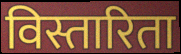
विस्तारिता